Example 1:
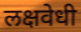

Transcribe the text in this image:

लक्षवेधी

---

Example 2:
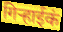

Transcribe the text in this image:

गिऱ्हाईकं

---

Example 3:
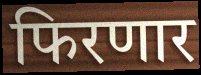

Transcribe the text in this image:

फिरणार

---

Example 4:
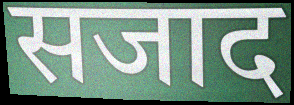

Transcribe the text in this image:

सजाद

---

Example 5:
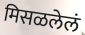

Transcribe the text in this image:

मिसळलेलं